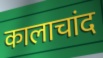
कालाचांद